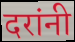
दरांनी